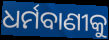
ଧର୍ମବାଣୀକୁ